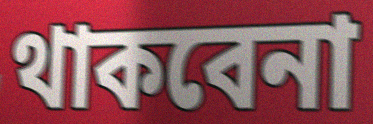
থাকবেনা